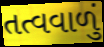
તત્વવાળું